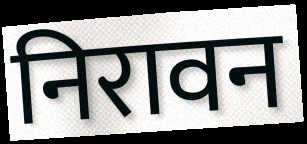
निरावन